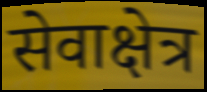
सेवाक्षेत्र